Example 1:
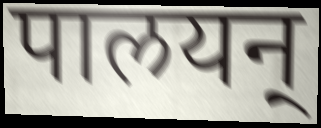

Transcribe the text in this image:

पालयन्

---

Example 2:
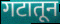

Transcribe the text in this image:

गटातून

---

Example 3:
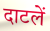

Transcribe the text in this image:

दाटलें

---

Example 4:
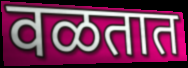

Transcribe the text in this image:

वळतात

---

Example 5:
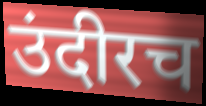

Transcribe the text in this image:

उंदीरच